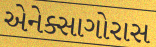
એનેક્સાગોરાસ